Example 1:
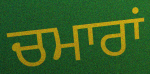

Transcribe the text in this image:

ਚਮਾਰਾਂ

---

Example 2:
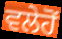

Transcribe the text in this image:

ਵਲੇਹੋਂ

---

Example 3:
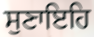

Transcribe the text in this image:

ਸੁਣਾਇਹਿ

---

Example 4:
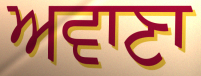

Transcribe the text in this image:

ਅਵਾਣਾ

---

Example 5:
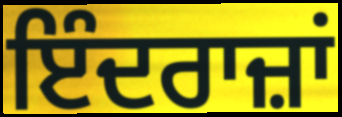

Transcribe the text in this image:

ਇੰਦਰਾਜ਼ਾਂ